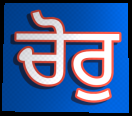
ਚੋਰੁ